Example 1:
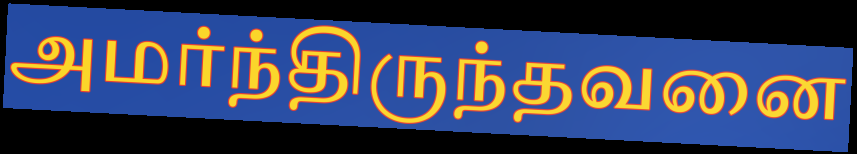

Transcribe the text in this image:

அமர்ந்திருந்தவனை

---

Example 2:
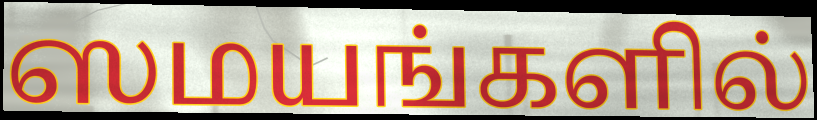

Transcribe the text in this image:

ஸமயங்களில்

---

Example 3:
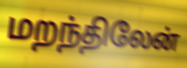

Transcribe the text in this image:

மறந்திலேன்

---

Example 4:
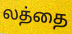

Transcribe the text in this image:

லத்தை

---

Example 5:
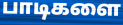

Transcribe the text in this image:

பாடிகளை